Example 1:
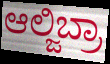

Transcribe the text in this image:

ಆಲ್ಜಿಬ್ರಾ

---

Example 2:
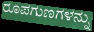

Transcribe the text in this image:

ರೂಪಗುಣಗಳನ್ನು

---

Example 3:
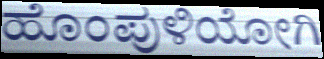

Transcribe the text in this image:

ಹೊಂಪುಳಿಯೋಗಿ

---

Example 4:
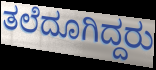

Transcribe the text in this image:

ತಲೆದೂಗಿದ್ದರು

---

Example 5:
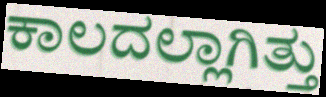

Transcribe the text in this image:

ಕಾಲದಲ್ಲಾಗಿತ್ತು